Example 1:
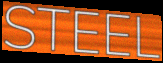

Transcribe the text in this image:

STEEL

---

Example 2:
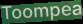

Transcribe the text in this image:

Toompea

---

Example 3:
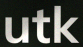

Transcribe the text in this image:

utk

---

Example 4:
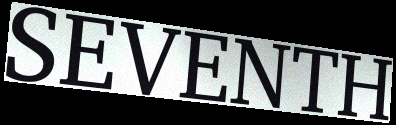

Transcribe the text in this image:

SEVENTH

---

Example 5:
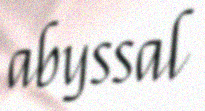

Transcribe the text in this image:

abyssal